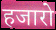
हजारो